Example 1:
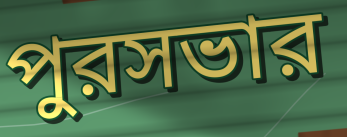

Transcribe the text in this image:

পুরসভার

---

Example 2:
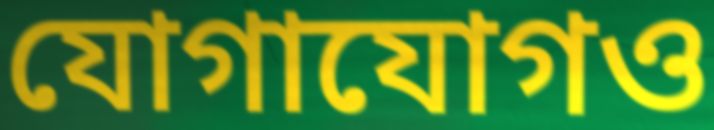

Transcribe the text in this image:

যোগাযোগও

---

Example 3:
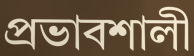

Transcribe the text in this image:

প্রভাবশালী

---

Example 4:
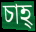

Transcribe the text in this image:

চাহ্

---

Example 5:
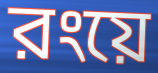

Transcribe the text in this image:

রংয়ে